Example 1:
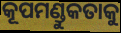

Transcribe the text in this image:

କୂପମଣ୍ଡୁକତାକୁ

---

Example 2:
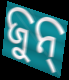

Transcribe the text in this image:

ଜୁନ୍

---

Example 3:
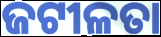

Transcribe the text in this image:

ଜଟୀଳତା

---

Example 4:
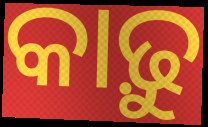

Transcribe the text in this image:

କାଢ଼ୁ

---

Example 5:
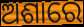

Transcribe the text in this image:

ଅଶାରେ